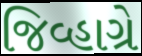
જિવ્હાગ્રે